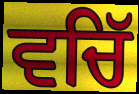
ਵਚਿੱ